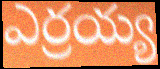
ఎర్రయ్య